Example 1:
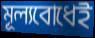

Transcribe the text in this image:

মূল্যবোধেই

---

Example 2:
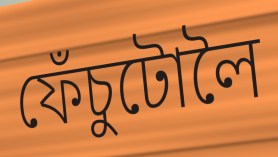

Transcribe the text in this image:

ফেঁচুটোলৈ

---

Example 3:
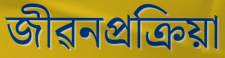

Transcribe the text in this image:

জীৱনপ্ৰক্ৰিয়া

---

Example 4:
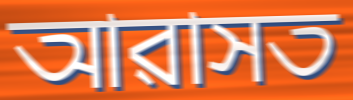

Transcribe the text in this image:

আৱাসত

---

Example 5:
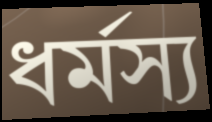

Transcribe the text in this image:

ধৰ্মস্য